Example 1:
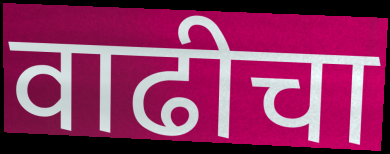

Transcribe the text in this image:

वाढीचा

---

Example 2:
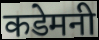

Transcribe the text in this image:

कडेमनी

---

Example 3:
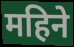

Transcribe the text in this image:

महिने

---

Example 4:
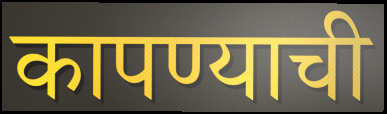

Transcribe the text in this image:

कापण्याची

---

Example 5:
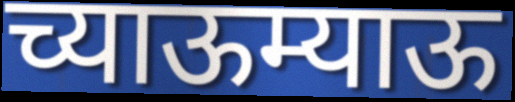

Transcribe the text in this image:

च्याऊम्याऊ